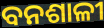
ବନଶାଳୀ